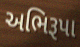
અભિરૂપા